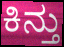
ಕಿನ್ತು